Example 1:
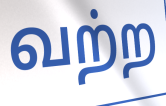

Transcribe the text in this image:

வற்ற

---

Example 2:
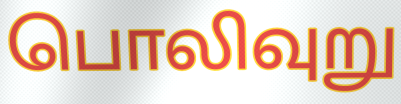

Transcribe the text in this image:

பொலிவுறு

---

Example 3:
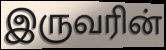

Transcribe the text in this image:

இருவரின்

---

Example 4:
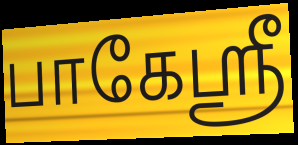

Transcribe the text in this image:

பாகேஸ்ரீ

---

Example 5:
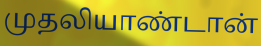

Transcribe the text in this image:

முதலியாண்டான்